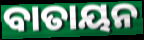
ବାତାୟନ